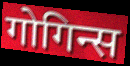
गोगिन्स